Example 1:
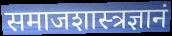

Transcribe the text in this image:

समाजशास्त्रज्ञानं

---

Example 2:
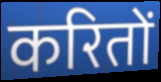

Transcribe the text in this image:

करितों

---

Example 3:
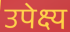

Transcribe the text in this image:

उपेक्ष्य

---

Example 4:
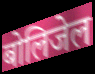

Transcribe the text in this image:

बोलिजेल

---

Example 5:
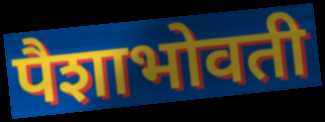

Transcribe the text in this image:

पैशाभोवती